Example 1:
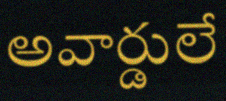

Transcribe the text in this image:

అవార్డులే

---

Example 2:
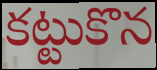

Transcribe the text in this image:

కట్టుకొన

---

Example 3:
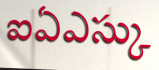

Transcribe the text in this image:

ఐఏఎస్కు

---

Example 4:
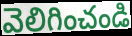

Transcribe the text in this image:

వెలిగించండి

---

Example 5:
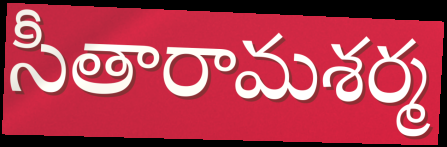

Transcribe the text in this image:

సీతారామశర్మ